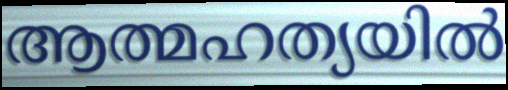
ആത്മഹത്യയിൽ